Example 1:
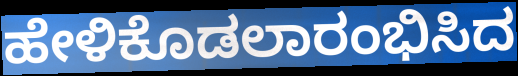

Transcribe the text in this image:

ಹೇಳಿಕೊಡಲಾರಂಭಿಸಿದ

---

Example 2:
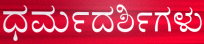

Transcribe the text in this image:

ಧರ್ಮದರ್ಶಿಗಳು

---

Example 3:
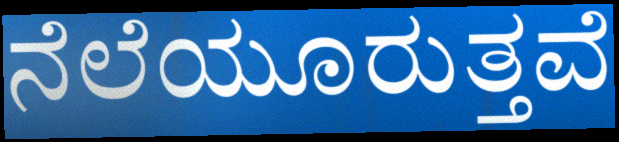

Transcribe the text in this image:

ನೆಲೆಯೂರುತ್ತವೆ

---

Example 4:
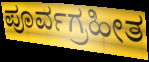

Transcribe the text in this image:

ಪೂರ್ವಗ್ರಹೀತ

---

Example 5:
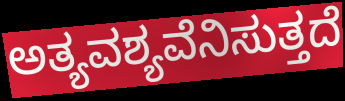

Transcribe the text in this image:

ಅತ್ಯವಶ್ಯವೆನಿಸುತ್ತದೆ